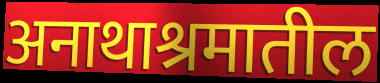
अनाथाश्रमातील